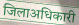
जिलाअधिकारी